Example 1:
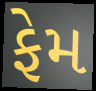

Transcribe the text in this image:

ફેમ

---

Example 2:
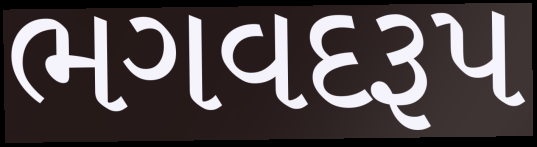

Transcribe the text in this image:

ભગવદરૂપ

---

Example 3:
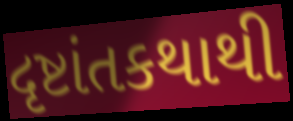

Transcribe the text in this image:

દૃષ્ટાંતકથાથી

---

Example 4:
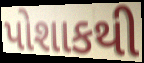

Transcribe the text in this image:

પોશાકથી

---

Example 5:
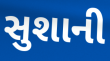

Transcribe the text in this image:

સુશાની